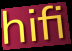
hifi